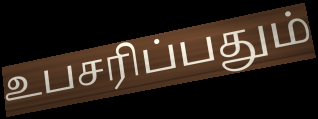
உபசரிப்பதும்